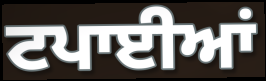
ਟਪਾਈਆਂ